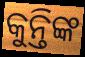
କୁନ୍ତିଙ୍କ